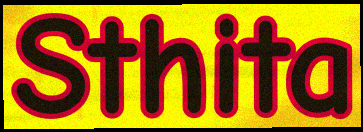
Sthita